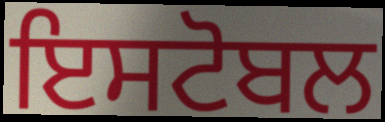
ਇਸਟੋਬਲ